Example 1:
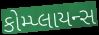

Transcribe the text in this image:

કોમ્પ્લાયન્સ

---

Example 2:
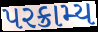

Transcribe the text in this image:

પરક્રામ્ય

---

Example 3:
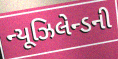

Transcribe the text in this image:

ન્યૂઝિલેન્ડની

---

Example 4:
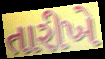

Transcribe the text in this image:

તારીખે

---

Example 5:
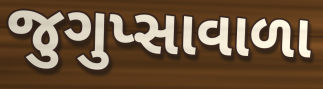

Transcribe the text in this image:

જુગુપ્સાવાળા